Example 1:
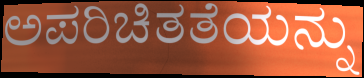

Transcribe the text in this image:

ಅಪರಿಚಿತತೆಯನ್ನು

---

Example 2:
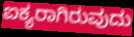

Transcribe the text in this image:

ಐಕ್ಯರಾಗಿರುವುದು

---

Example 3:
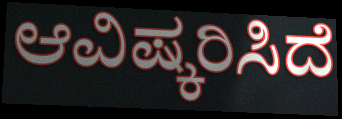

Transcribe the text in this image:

ಆವಿಷ್ಕರಿಸಿದೆ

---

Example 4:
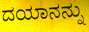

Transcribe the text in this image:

ದಯಾನನ್ನು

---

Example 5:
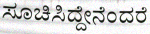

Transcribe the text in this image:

ಸೂಚಿಸಿದ್ದೇನೆಂದರೆ